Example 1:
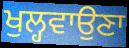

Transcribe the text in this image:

ਖੁਲ੍ਹਵਾਉਣਾ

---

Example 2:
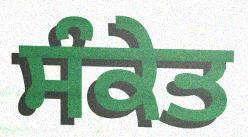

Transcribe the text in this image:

ਸੰਕੇਤ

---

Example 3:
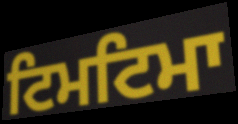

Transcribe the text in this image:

ਟਿਮਟਿਮਾ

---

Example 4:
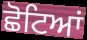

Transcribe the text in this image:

ਛੋਟਿਆਂ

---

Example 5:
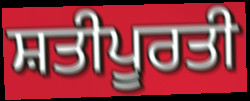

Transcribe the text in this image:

ਸ਼ਤੀਪੂਰਤੀ